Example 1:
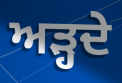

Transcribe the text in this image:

ਅੜ੍ਹਦੇ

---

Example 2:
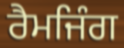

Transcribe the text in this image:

ਰੈਮਜਿੰਗ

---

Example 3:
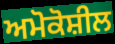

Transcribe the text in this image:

ਅਮੋਕੋਸ਼ੀਲ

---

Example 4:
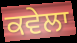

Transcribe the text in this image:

ਕਵੇਲਾ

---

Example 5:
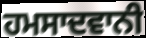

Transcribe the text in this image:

ਹਮਸਾਦਵਾਨੀ